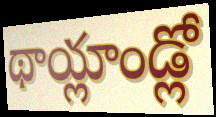
థాయ్లాండ్లో